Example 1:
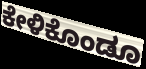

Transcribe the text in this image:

ಕೇಳಿಕೊಂಡೂ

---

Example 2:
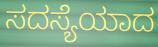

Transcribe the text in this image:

ಸದಸ್ಯೆಯಾದ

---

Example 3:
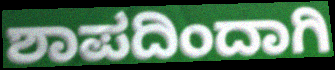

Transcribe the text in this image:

ಶಾಪದಿಂದಾಗಿ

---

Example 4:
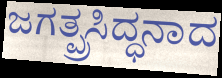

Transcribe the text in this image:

ಜಗತ್ಪ್ರಸಿದ್ಧನಾದ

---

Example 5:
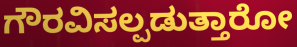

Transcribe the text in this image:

ಗೌರವಿಸಲ್ಪಡುತ್ತಾರೋ